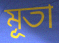
মূতা